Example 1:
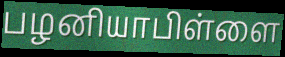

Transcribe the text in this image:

பழனியாபிள்ளை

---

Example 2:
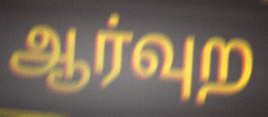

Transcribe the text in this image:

ஆர்வுற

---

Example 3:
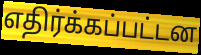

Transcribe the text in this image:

எதிர்க்கப்பட்டன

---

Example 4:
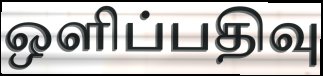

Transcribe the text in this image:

ஒளிப்பதிவு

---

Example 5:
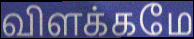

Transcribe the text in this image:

விளக்கமே